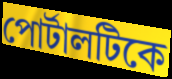
পোর্টালটিকে